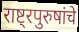
राष्ट्रपुरुषांचे